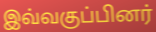
இவ்வகுப்பினர்